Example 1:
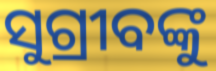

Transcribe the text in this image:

ସୁଗ୍ରୀବଙ୍କୁ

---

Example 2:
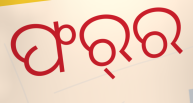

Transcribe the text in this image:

ଫର୍‌ର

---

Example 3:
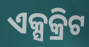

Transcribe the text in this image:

ଏକ୍ସକ୍ରିଟ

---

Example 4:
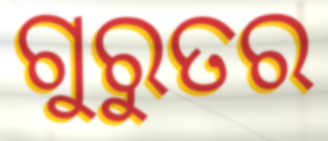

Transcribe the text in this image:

ଗୁରୁତର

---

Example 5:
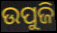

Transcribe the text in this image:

ଉପୁଜି